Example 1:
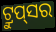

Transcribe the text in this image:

ଟ୍ରୁପ୍‌ସର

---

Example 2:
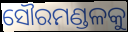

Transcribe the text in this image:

ସୌରମଣ୍ଡଳକୁ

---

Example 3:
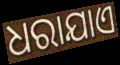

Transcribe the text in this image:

ଧରାଯାଏ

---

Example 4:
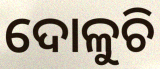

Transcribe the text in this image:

ଦୋଳୁଚି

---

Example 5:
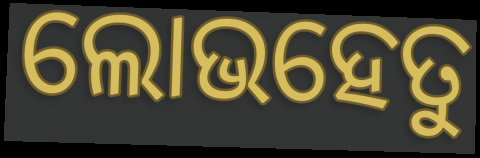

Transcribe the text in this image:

ଲୋଭହେତୁ